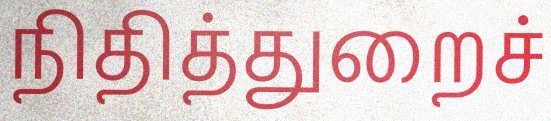
நிதித்துறைச்